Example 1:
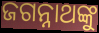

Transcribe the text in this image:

ଜଗନ୍ନାଥଙ୍କୁ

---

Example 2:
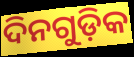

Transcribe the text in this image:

ଦିନଗୁଡ଼ିକ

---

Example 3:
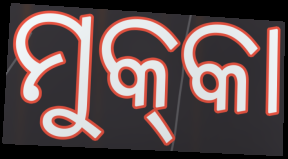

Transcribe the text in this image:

ମୁକ୍‌କା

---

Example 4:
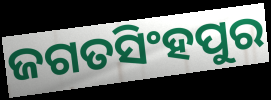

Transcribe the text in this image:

ଜଗତସିଂହପୁର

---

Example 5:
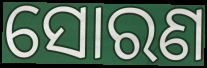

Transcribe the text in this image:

ସୋରଣ